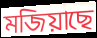
মজিয়াছে